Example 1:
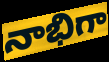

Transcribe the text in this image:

నాభిగా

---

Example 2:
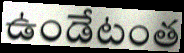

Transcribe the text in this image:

ఉండేటంత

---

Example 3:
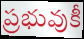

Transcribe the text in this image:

ప్రభువుకీ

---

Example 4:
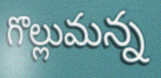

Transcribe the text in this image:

గొల్లుమన్న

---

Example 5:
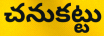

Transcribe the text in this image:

చనుకట్టు